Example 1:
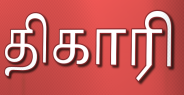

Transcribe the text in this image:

திகாரி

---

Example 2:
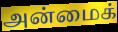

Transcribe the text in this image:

அன்மைக்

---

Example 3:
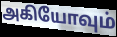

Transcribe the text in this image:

அகியோவும்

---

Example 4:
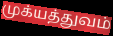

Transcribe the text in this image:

முக்யத்துவம்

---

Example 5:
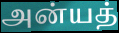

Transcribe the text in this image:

அன்யத்